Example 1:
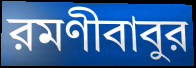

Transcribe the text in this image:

রমণীবাবুর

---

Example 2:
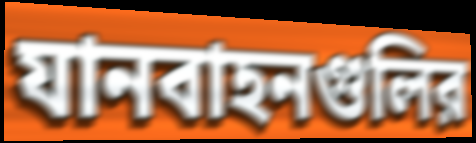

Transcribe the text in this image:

যানবাহনগুলির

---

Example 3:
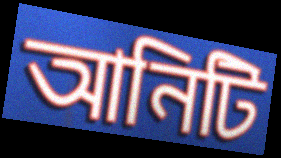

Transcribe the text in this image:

আনিটি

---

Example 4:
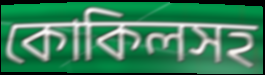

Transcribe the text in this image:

কোকিলসহ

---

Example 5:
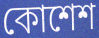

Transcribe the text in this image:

কোশেশ